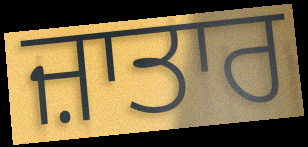
ਜ਼ਾਤਾਰ